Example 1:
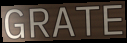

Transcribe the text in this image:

GRATE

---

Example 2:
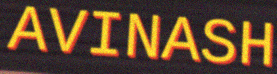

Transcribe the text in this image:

AVINASH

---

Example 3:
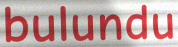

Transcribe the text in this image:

bulundu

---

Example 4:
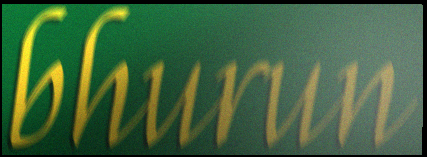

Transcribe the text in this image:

bhurun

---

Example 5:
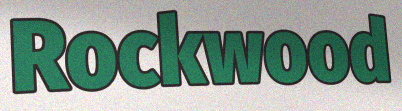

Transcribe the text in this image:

Rockwood